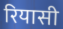
रियासी